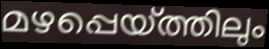
മഴപ്പെയ്ത്തിലും